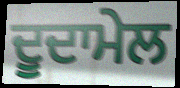
ਦੂਦਾਮੇਲ